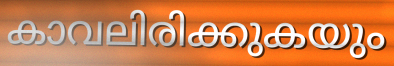
കാവലിരിക്കുകയും